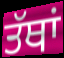
ਤੱਥਾਂ